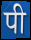
पी